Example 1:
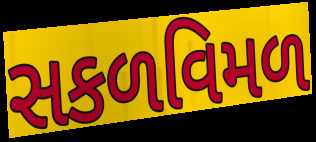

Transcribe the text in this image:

સકળવિમળ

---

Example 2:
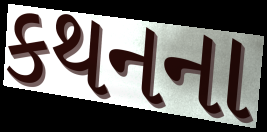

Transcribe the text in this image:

કથનના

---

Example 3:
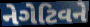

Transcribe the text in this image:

નેગેટિવને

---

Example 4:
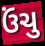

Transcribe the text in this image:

ઉંચુ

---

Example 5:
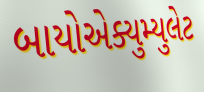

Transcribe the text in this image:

બાયોએક્યુમ્યુલેટ